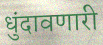
धुंदावणारी